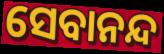
ସେବାନନ୍ଦ